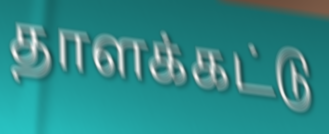
தாளக்கட்டு